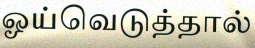
ஓய்வெடுத்தால்